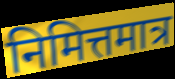
निमित्तमात्र